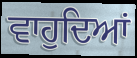
ਵਾਹੁਦਿਆਂ